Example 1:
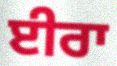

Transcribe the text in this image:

ਈਰਾ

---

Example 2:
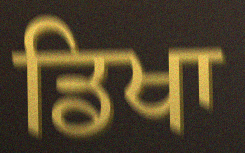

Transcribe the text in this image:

ਡਿਖਾ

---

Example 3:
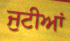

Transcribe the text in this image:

ਜੁਟੀਆਂ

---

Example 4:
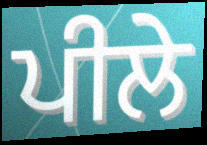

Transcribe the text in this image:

ਪੀਲੇ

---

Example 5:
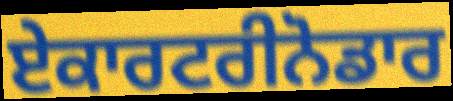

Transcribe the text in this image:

ਏਕਾਰਟਰੀਨੋਡਾਰ